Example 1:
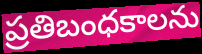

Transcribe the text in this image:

ప్రతిబంధకాలను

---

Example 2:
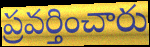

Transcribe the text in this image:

ప్రవర్తించారు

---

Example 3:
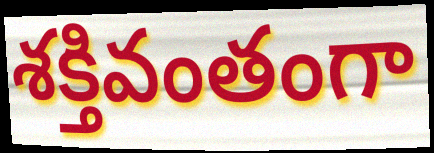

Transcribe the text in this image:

శక్తివంతంగా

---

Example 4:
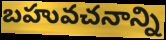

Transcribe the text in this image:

బహువచనాన్ని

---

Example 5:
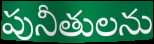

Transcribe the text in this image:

పునీతులను